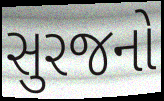
સુરજનો